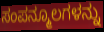
ಸಂಪನ್ಮೂಲಗಳನ್ನು